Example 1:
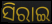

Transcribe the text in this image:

ସିରାଇ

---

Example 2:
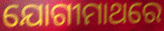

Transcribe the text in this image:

ଯୋଗୀମାଥରେ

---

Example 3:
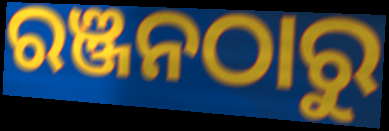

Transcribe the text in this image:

ରଞ୍ଜନଠାରୁ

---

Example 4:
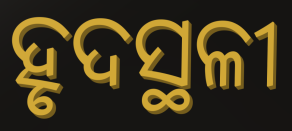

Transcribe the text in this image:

ହୃଦସ୍ଥଳୀ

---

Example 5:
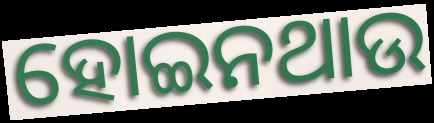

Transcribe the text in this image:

ହୋଇନଥାଉ